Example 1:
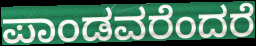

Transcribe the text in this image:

ಪಾಂಡವರೆಂದರೆ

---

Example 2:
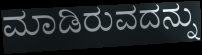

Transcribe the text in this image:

ಮಾಡಿರುವದನ್ನು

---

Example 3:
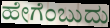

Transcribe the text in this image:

ಹೇಗೆಂಬುದು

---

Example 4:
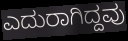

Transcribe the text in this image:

ಎದುರಾಗಿದ್ದವು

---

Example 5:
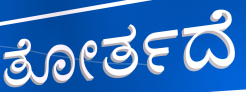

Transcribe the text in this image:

ತೋರ್ತದೆ